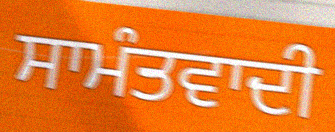
ਸਾਮੰਤਵਾਦੀ